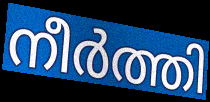
നീർത്തി